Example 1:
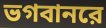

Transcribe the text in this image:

ভগবানরে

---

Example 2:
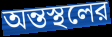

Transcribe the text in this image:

অন্তস্থলের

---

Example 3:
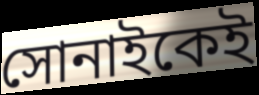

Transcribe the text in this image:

সোনাইকেই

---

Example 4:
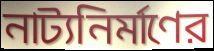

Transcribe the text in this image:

নাট্যনির্মাণের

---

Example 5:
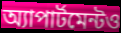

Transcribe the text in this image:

অ্যাপার্টমেন্টও